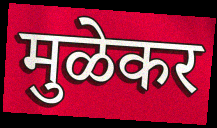
मुळेकर